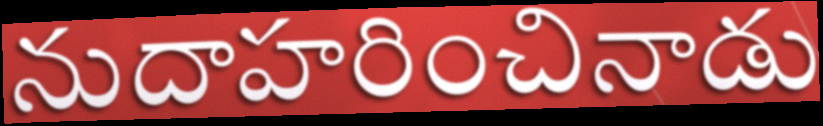
నుదాహరించినాడు